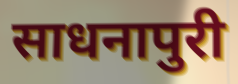
साधनापुरी